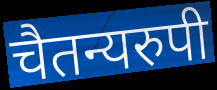
चैतन्यरुपी